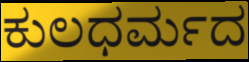
ಕುಲಧರ್ಮದ